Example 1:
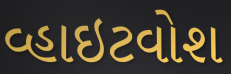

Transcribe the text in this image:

વ્હાઇટવોશ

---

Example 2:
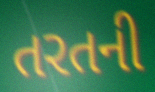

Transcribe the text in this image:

તરતની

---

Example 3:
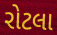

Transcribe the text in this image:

રોટલા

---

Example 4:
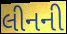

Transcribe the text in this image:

લીનની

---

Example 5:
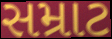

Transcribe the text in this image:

સમ્રાટ